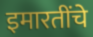
इमारतींचे